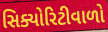
સિક્યોરિટીવાળો